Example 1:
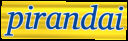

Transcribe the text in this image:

pirandai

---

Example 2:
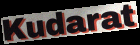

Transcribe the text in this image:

Kudarat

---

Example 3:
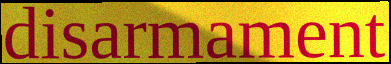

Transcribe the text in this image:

disarmament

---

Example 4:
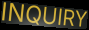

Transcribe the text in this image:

INQUIRY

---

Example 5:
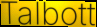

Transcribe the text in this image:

Talbott